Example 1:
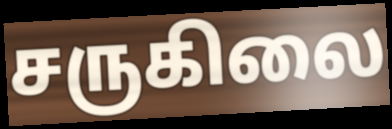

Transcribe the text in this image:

சருகிலை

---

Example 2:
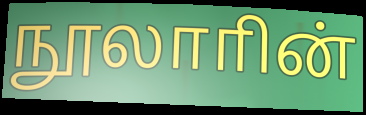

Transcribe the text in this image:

நூலாரின்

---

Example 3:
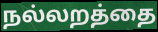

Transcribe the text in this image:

நல்லறத்தை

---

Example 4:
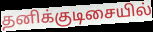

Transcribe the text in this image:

தனிக்குடிசையில்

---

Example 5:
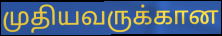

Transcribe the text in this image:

முதியவருக்கான